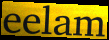
eelam